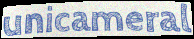
unicameral